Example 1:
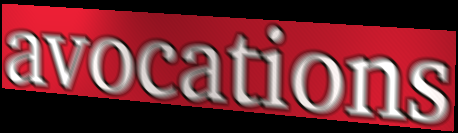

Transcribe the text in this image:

avocations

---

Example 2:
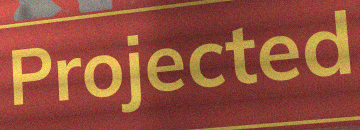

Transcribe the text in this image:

Projected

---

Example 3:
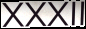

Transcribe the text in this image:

XXXII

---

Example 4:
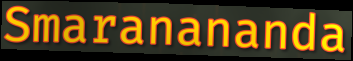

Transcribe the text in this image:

Smaranananda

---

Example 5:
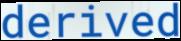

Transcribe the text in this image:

derived